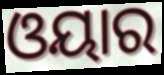
ଓୟାର